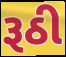
રૂઠી